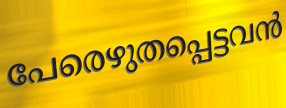
പേരെഴുതപ്പെട്ടവൻ